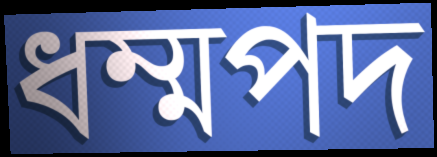
ধম্মপদ